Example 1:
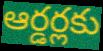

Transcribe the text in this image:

ఆర్డర్లకు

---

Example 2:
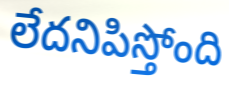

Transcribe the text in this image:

లేదనిపిస్తోంది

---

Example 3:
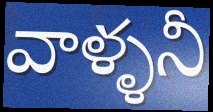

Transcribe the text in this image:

వాళ్ళనీ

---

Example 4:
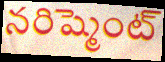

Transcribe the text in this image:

నరిష్మెంట్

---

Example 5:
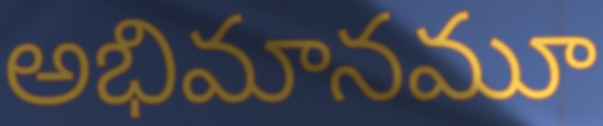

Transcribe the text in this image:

అభిమానమూ